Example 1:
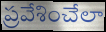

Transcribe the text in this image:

ప్రవేశించేలా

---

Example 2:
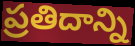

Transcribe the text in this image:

ప్రతిదాన్ని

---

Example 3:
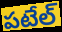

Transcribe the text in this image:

పటేల్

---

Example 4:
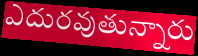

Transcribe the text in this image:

ఎదురవుతున్నారు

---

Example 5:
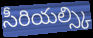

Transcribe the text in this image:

సీరియల్స్కి